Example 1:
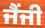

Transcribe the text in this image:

ਜੈਂਜੀ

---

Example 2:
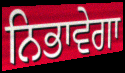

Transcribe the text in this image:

ਨਿਭਾਵੇਗਾ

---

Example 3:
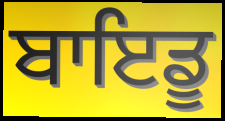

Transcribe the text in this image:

ਬਾਇਡੂ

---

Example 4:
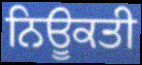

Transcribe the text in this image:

ਨਿਊਕਤੀ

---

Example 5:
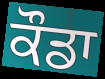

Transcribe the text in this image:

ਕੌਡਾ